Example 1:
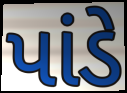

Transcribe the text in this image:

પાંડે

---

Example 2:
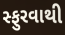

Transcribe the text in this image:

સ્ફુરવાથી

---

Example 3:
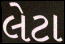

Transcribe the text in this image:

લેટા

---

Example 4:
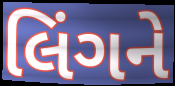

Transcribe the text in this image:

લિંગને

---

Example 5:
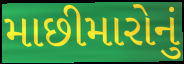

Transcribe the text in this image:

માછીમારોનું